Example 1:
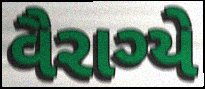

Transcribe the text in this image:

વૈરાગ્યે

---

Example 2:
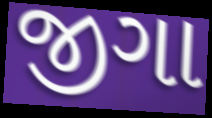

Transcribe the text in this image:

જીગા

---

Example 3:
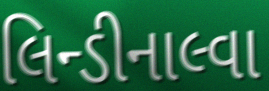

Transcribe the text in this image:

લિન્ડીનાલ્વા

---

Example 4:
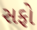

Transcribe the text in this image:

સફો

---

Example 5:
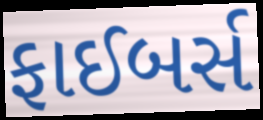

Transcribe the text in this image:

ફાઈબર્સ